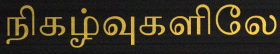
நிகழ்வுகளிலே